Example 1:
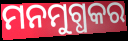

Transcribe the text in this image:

ମନମୁଗ୍ଧକର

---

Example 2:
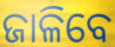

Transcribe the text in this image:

ଜାଳିବେ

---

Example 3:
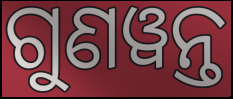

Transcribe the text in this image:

ଗୁଣୱନ୍ତ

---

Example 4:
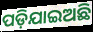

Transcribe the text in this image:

ପଡ଼ିଯାଇଅଛି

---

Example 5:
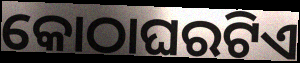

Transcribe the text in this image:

କୋଠାଘରଟିଏ